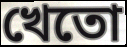
খেতো